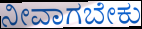
ನೀವಾಗಬೇಕು